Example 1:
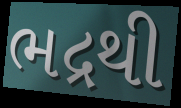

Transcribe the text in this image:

ભદ્રથી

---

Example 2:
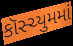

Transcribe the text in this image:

કૉસ્ચ્યુમમાં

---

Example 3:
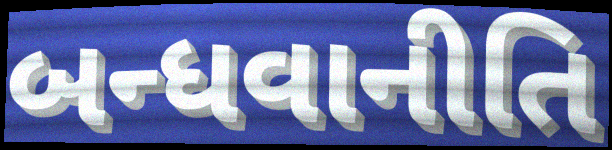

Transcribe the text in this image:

બન્ધવાનીતિ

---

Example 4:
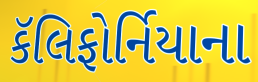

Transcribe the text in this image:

કૅલિફોર્નિયાના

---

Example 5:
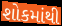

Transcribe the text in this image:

શોકમાંથી